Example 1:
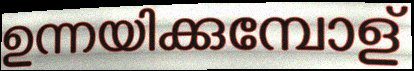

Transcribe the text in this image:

ഉന്നയിക്കുമ്പോള്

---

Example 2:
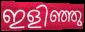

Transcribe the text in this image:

ഇളിഞ്ഞു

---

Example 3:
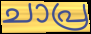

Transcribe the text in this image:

ചാപ്ര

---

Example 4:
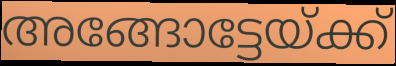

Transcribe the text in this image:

അങ്ങോട്ടേയ്ക്ക്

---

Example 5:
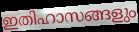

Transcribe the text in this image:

ഇതിഹാസങ്ങളും